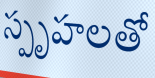
స్పృహలతో